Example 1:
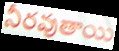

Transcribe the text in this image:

నీరవుతాయి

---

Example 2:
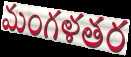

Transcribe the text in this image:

మంగళతర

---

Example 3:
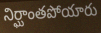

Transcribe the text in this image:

నిర్ఘాంతపోయారు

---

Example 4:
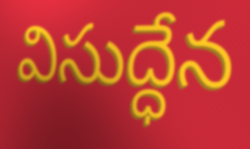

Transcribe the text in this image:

విసుద్ధేన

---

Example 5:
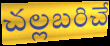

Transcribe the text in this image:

చల్లబరిచే